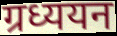
ग्रध्ययन